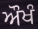
ਔਖੰ